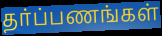
தர்ப்பணங்கள்